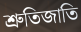
শ্রুতিজাতি